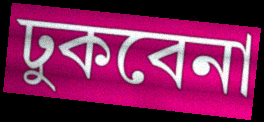
ঢুকবেনা